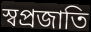
স্বপ্রজাতি